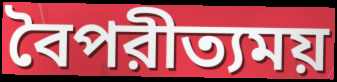
বৈপরীত্যময়